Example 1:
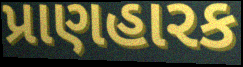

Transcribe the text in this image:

પ્રાણહારક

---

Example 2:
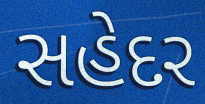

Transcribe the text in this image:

સહેદર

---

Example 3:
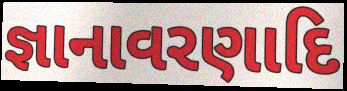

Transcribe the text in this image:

જ્ઞાનાવરણાદિ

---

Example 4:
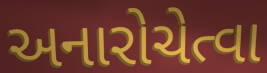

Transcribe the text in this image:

અનારોચેત્વા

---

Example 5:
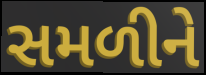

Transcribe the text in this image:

સમળીને